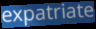
expatriate